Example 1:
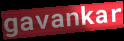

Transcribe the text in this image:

gavankar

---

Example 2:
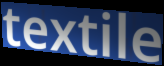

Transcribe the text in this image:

textile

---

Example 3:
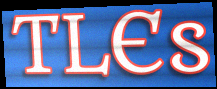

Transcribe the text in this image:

TLEs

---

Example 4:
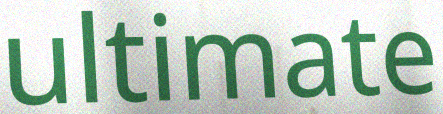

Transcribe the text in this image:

ultimate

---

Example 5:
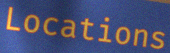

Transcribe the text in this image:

Locations